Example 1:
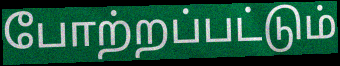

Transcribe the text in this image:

போற்றப்பட்டும்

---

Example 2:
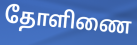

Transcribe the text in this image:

தோளிணை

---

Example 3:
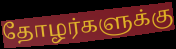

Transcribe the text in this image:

தோழர்களுக்கு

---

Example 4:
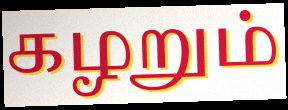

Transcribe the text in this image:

கழறும்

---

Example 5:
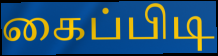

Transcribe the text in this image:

கைப்பிடி